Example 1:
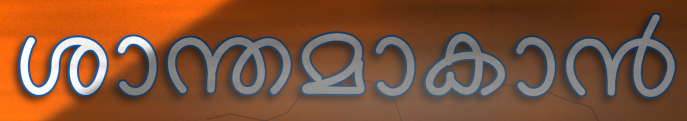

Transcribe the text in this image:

ശാന്തമാകാൻ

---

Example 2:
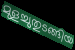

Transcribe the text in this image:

മുളച്ചുതുടങ്ങിയ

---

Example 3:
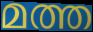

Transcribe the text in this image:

മത്ത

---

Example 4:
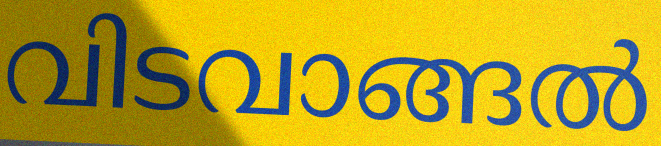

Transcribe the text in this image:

വിടവാങ്ങൽ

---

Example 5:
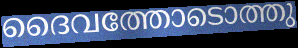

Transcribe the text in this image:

ദൈവത്തോടൊത്തു